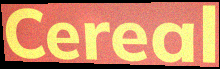
Cereal